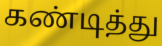
கண்டித்து